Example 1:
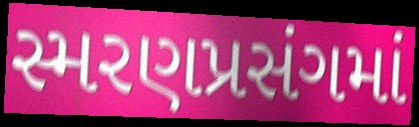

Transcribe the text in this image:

સ્મરણપ્રસંગમાં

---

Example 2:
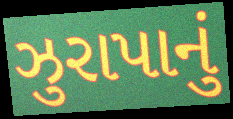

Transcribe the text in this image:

ઝુરાપાનું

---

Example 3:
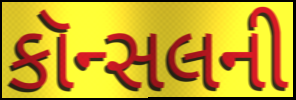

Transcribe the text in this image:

કૉન્સલની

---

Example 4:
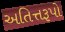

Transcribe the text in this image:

અતિત્તરૂપો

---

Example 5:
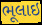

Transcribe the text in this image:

ભૂલાઇ